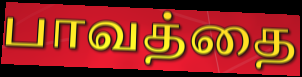
பாவத்தை